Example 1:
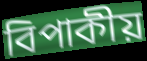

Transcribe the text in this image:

বিপাকীয়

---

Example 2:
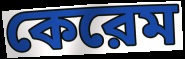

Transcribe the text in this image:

কেরেম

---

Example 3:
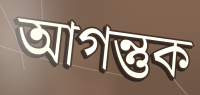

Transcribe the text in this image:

আগন্তুক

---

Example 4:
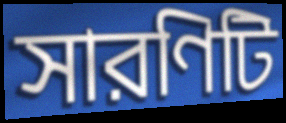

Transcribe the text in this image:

সারণিটি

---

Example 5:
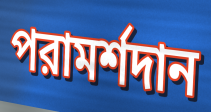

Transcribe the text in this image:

পরামর্শদান